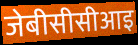
जेबीसीसीआइ